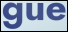
gue